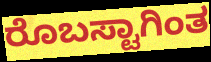
ರೊಬಸ್ಟಾಗಿಂತ